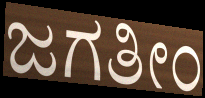
ಜಗತೀಂ